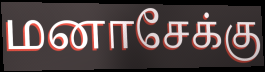
மனாசேக்கு